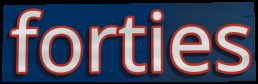
forties